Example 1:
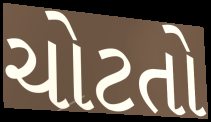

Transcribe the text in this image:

ચોટતો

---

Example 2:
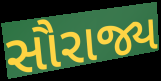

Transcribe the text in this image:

સૌરાજ્ય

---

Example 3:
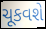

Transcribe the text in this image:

ચૂકવશે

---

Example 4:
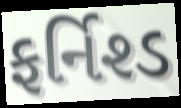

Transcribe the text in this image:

ફર્નિશ્ડ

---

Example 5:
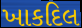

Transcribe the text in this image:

ખાકદિલ